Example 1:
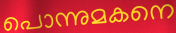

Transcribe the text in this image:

പൊന്നുമകനെ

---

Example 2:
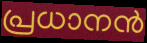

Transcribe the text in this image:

പ്രധാനൻ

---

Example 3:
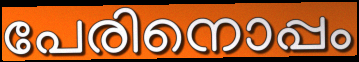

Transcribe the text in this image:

പേരിനൊപ്പം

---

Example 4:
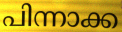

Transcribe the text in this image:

പിന്നാക്ക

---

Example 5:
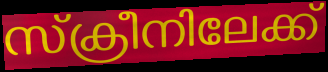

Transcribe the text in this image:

സ്‌ക്രീനിലേക്ക്